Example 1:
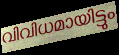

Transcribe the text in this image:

വിവിധമായിട്ടും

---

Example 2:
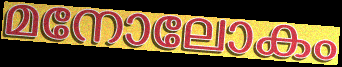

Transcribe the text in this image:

മനോലോകം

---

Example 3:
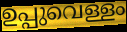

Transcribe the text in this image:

ഉപ്പുവെള്ളം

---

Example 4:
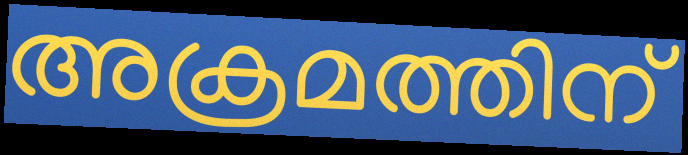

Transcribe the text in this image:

അക്രമത്തിന്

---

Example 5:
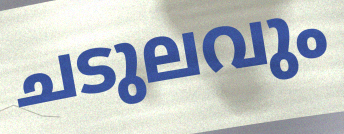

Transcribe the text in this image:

ചടുലവും